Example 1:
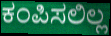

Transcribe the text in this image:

ಕಂಪಿಸಲಿಲ್ಲ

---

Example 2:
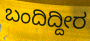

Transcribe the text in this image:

ಬಂದಿದ್ದೀರ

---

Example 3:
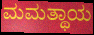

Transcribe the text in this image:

ಮಮತ್ಥಾಯ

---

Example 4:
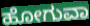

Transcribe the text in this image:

ಹೋಗುವಾ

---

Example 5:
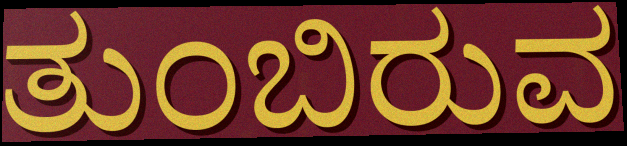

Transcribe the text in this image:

ತುಂಬಿರುವ